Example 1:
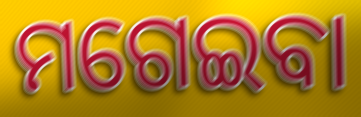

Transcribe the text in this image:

ମଗେଇବା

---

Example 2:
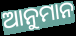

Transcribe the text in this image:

ଆନୁମାନ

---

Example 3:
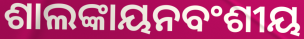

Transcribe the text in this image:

ଶାଲଙ୍କାୟନବଂଶୀୟ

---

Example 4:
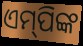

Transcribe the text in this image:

ଏମ୍‌ପିଙ୍କ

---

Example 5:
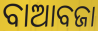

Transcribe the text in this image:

ବାଆବଜା